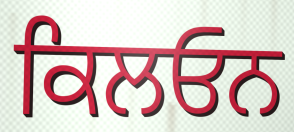
ਕਿਲਓਨ